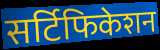
सर्टिफिकेशन